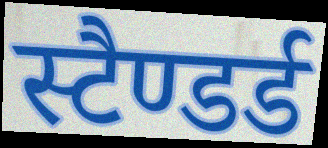
स्टैण्डर्ड